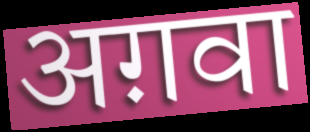
अग़वा